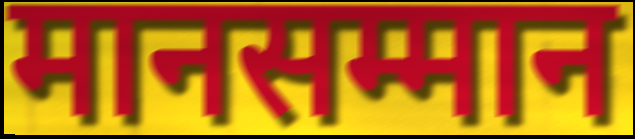
मानसम्मान